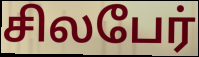
சிலபேர்